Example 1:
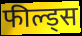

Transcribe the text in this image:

फील्ड्स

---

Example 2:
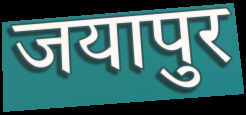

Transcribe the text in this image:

जयापुर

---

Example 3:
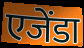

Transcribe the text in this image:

एजेंडा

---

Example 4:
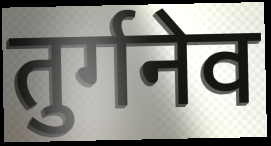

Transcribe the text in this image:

तुर्गनेव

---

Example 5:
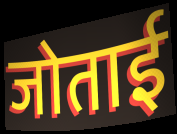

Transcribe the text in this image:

जोताई